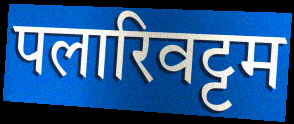
पलारिवट्टम